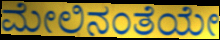
ಮೇಲಿನಂತೆಯೇ